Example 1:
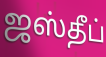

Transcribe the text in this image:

ஜஸ்தீப்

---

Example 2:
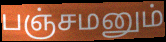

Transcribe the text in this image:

பஞ்சமனும்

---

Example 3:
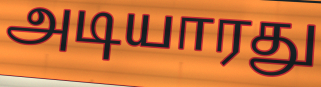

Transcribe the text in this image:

அடியாரது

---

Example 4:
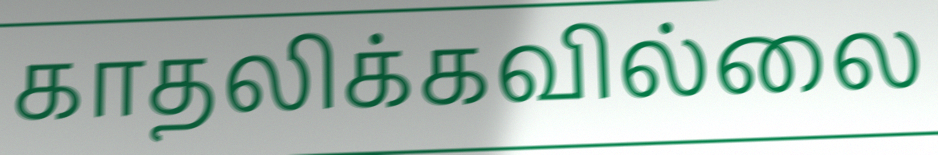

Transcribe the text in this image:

காதலிக்கவில்லை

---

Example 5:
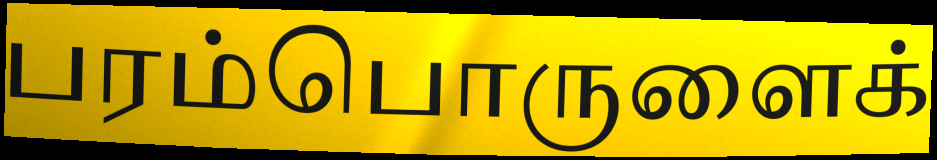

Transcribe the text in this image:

பரம்பொருளைக்